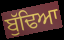
ਬੁੱਢਿਆ